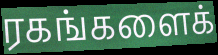
ரகங்களைக்